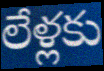
లేళ్లకు